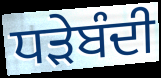
ਧੜੇਬੰਦੀ